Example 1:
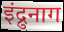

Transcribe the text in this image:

इंद्रुनाग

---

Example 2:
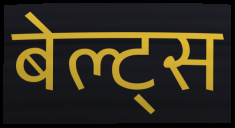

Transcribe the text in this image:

बेल्ट्स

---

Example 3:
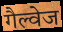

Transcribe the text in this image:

गैल्वेज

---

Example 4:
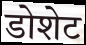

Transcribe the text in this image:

डोशेट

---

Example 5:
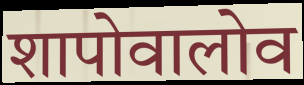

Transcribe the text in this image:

शापोवालोव